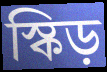
স্কিড়